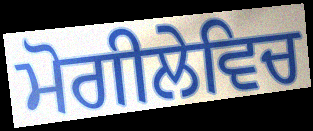
ਮੋਗੀਲੇਵਿਚ